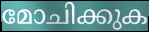
മോചിക്കുക